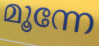
മൂന്നേ